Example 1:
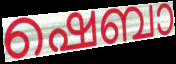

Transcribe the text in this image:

ഷെബാ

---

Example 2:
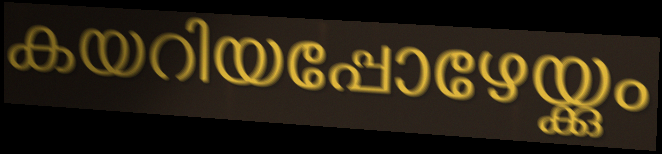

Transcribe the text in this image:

കയറിയപ്പോഴേയ്ക്കും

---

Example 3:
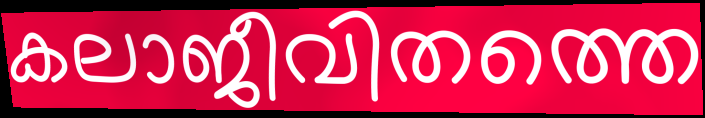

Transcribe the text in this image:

കലാജീവിതത്തെ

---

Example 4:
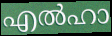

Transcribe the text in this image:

എൽഹാ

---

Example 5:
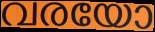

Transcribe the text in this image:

വരയോ